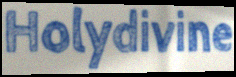
Holydivine